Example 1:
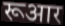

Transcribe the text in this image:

रूआर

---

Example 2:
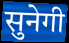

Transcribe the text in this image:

सुनेगी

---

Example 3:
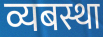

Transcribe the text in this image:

व्यबस्था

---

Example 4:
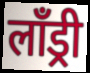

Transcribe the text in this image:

लॉंड्री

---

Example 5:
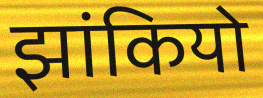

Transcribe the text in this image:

झांकियो